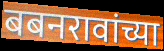
बबनरावांच्या